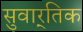
सुवार्तिक